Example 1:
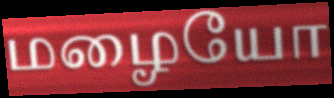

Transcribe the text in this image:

மழையோ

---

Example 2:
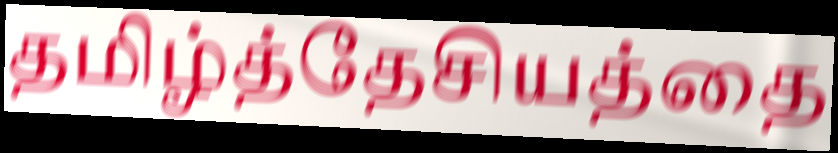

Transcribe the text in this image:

தமிழ்த்தேசியத்தை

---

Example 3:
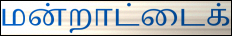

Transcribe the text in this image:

மன்றாட்டைக்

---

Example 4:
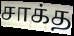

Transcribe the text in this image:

சாக்த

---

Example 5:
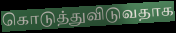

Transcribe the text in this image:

கொடுத்துவிடுவதாக